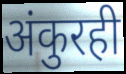
अंकुरही